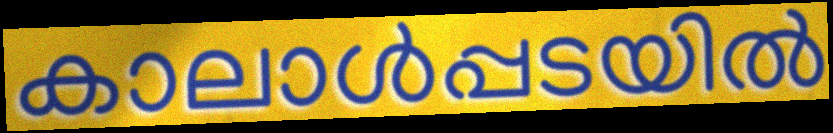
കാലാൾപ്പടയിൽ